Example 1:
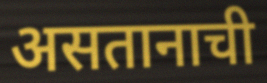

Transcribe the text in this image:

असतानाची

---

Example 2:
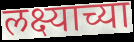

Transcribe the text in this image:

लक्ष्याच्या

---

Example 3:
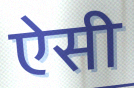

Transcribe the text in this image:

ऐसी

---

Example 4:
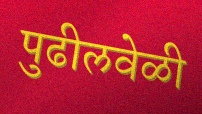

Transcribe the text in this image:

पुढीलवेळी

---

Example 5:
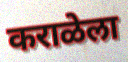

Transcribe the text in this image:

कराळेला